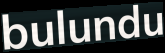
bulundu